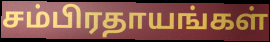
சம்பிரதாயங்கள்